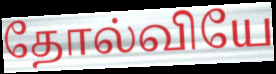
தோல்வியே